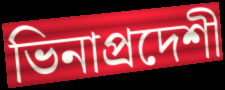
ভিনাপ্রদেশী